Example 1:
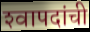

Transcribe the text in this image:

श्वापदांची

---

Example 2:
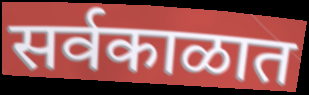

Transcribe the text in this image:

सर्वकाळात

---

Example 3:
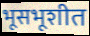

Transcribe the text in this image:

भूसभूशीत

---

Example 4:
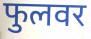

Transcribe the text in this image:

फुलवर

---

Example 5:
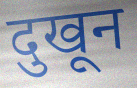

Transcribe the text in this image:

दुखून